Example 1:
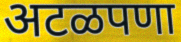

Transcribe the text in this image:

अटळपणा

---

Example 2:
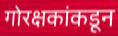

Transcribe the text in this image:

गोरक्षकांकडून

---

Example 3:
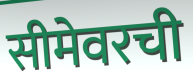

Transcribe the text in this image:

सीमेवरची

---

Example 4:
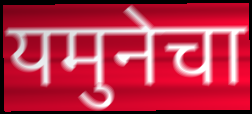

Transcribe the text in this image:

यमुनेचा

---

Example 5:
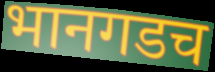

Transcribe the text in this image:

भानगडच